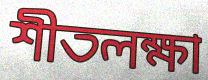
শীতলক্ষা